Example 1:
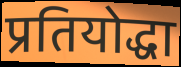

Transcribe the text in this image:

प्रतियोद्धा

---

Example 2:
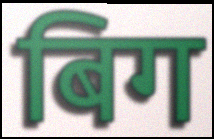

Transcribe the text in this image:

बिग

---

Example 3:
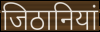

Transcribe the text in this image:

जिठानियां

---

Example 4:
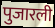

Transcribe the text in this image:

पुजारली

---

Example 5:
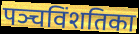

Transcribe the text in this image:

पञ्चविंशतिका